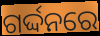
ଗର୍ଦ୍ଦନରେ